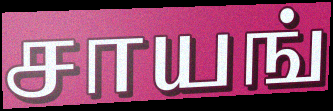
சாயங்